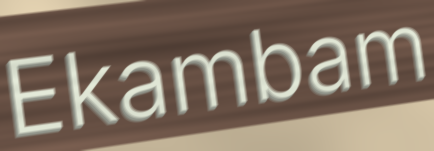
Ekambam